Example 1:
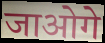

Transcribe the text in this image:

जाओगे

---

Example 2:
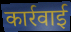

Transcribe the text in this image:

कार्रवाई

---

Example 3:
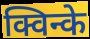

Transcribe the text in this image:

क्विन्के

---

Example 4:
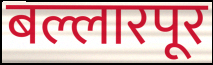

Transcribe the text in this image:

बल्लारपूर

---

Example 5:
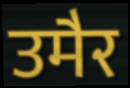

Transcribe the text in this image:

उमैर